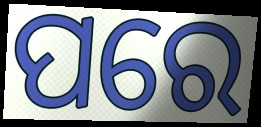
ପରେ